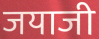
जयाजी